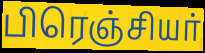
பிரெஞ்சியர்